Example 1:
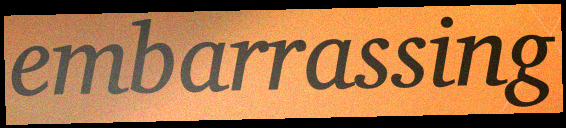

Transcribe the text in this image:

embarrassing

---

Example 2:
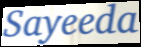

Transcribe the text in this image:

Sayeeda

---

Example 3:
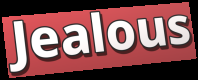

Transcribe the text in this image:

Jealous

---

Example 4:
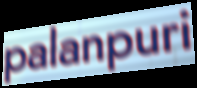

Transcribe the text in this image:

palanpuri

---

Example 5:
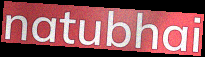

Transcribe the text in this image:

natubhai